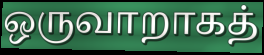
ஒருவாறாகத்